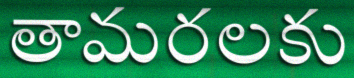
తామరలకు